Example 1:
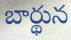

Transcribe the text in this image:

బార్థున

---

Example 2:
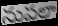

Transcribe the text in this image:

నుపలా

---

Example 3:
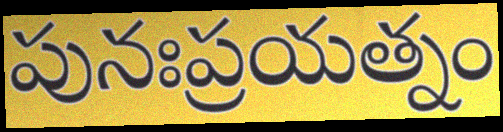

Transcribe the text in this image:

పునఃప్రయత్నం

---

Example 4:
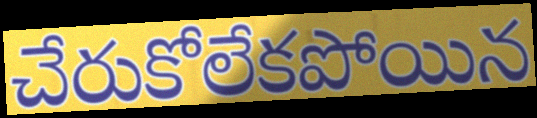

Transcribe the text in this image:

చేరుకోలేకపోయిన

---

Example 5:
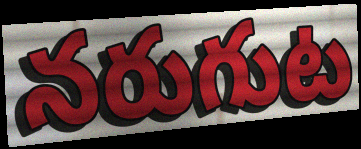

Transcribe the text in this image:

నరుగుట